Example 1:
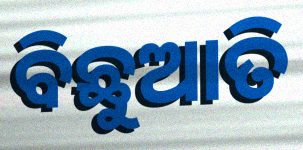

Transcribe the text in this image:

ବିଛୁଆତି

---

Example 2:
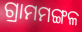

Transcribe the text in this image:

ଗ୍ରାମମଙ୍ଗଳ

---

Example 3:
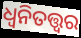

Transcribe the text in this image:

ଧ୍ଵନିତତ୍ତ୍ଵର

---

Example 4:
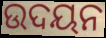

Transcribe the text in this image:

ଉଦୟନ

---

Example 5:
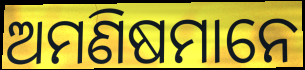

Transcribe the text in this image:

ଅମଣିଷମାନେ